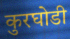
कुरघोडी